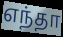
எந்தா